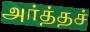
அர்த்தச்